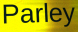
Parley